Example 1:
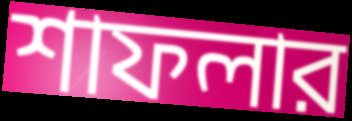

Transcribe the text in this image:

শাফলার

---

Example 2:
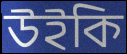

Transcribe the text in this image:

উইকি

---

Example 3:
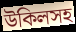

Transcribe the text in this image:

উকিলসহ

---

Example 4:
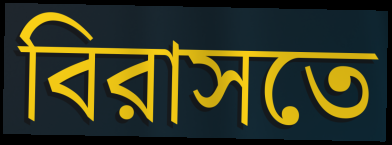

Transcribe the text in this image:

বিরাসতে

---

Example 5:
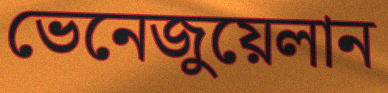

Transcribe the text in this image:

ভেনেজুয়েলান